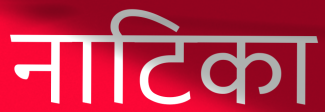
नाटिका